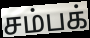
சம்பக்